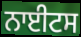
ਨਾਈਟਸ